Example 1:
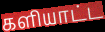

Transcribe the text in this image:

களியாட்ட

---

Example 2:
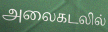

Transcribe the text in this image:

அலைகடலில்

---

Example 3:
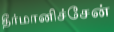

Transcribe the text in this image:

தீர்மானிச்சேன்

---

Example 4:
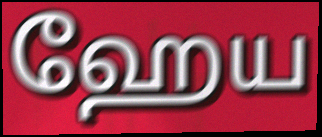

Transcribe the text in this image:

ஹேய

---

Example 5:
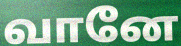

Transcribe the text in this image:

வானே